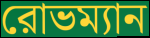
রোভম্যান